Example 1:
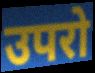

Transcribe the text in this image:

उपरो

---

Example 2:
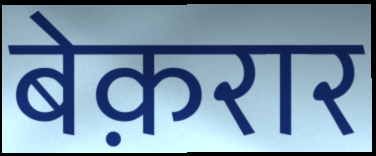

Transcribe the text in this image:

बेक़रार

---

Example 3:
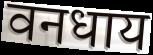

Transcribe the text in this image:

वनधाय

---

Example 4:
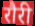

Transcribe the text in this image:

रौरी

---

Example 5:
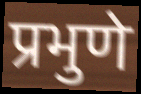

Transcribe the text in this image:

प्रभुणे